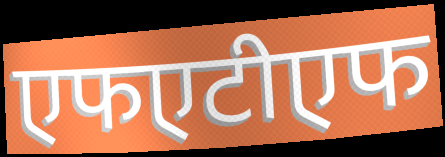
एफएटीएफ